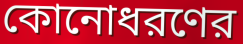
কোনোধরণের